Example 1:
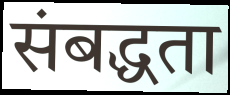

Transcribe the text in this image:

संबद्धता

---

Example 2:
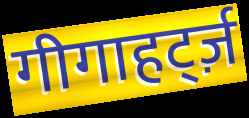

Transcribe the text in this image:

गीगाहर्ट्ज़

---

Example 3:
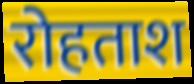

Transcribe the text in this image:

रोहताश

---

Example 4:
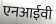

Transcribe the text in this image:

एनआईवी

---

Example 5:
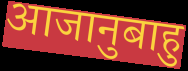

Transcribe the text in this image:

आजानुबाहु